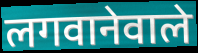
लगवानेवाले